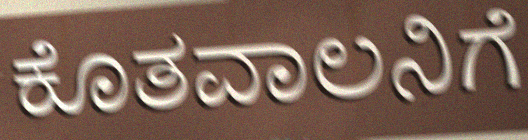
ಕೊತವಾಲನಿಗೆ